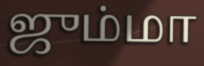
ஜும்மா